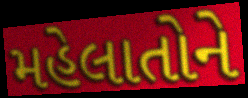
મહેલાતોને